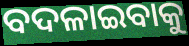
ବଦଳାଇବାକୁ